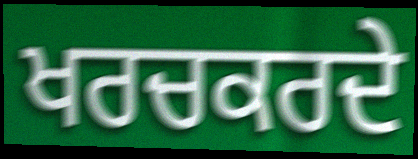
ਖਰਚਕਰਦੇ